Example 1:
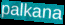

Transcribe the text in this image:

palkana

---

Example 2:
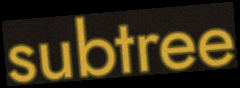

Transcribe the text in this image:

subtree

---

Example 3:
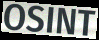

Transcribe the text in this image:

OSINT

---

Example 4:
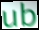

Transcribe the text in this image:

ub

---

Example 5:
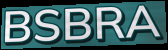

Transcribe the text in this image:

BSBRA